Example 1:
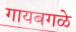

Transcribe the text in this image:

गायबगळे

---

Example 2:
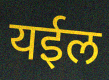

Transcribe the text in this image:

यईल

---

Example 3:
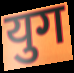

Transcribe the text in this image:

युग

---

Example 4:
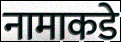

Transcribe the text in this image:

नामाकडे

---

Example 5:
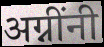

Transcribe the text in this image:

अग्नींनी